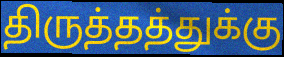
திருத்தத்துக்கு